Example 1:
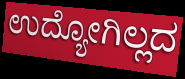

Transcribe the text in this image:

ಉದ್ಯೋಗಿಲ್ಲದ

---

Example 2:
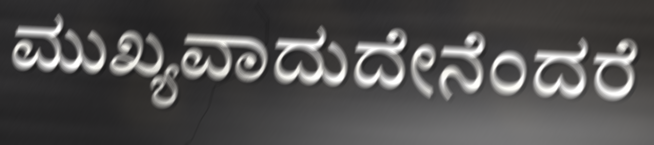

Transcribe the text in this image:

ಮುಖ್ಯವಾದುದೇನೆಂದರೆ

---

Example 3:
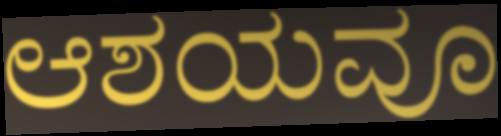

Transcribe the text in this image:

ಆಶಯವೂ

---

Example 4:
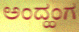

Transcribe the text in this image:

ಅಂದ್ಹಂಗ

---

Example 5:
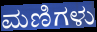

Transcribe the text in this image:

ಮಣಿಗಳು